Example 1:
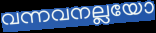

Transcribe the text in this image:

വന്നവനല്ലയോ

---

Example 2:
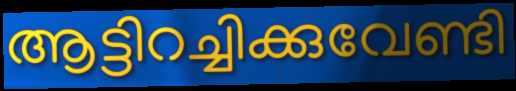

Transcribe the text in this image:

ആട്ടിറച്ചിക്കുവേണ്ടി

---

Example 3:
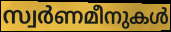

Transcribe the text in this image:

സ്വർണമീനുകൾ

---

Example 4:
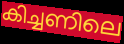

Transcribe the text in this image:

കിച്ചണിലെ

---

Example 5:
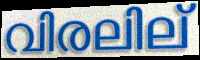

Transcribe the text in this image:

വിരലില്